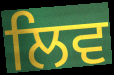
ਲਿਵ